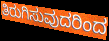
ತಿರುಗಿಸುವುದರಿಂದ